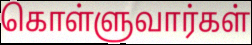
கொள்ளுவார்கள்